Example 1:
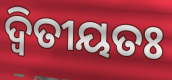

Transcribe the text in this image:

ଦ୍ବିତୀୟତଃ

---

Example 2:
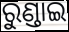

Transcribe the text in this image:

ରୁଣ୍ଡାଇ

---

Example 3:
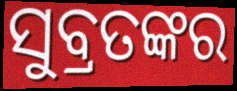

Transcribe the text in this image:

ସୁବ୍ରତଙ୍କର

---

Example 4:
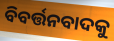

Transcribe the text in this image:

ବିବର୍ତ୍ତନବାଦକୁ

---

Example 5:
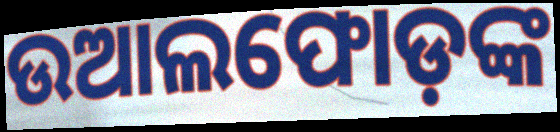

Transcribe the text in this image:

ଉଆଲଫୋଡ଼ଙ୍କ